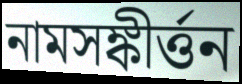
নামসঙ্কীর্ত্তন